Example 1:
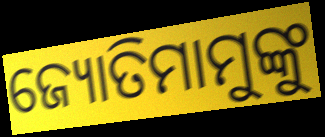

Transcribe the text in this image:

ଜ୍ୟୋତିମାମୁଙ୍କୁ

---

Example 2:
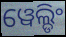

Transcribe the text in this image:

ୱେଲ୍ଡିଂ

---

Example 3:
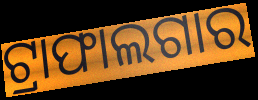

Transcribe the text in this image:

ଟ୍ରାଫାଲଗାର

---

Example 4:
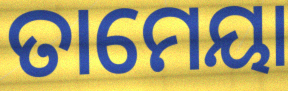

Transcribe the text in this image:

ତାମେୟା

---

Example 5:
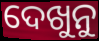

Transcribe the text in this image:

ଦେଖୁନୁ